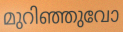
മുറിഞ്ഞുവോ